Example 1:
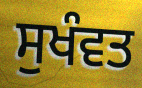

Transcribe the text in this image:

ਸੁਖੰਵਤ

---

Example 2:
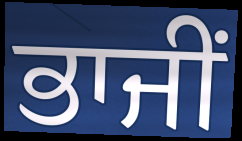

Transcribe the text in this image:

ਭਾਜੀਂ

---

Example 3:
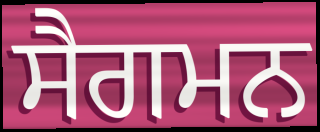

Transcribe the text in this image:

ਸੈਗਮਨ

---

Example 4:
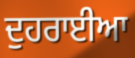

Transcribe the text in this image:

ਦੁਹਰਾਈਆ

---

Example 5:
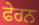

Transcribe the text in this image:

ਫੇਰਨ